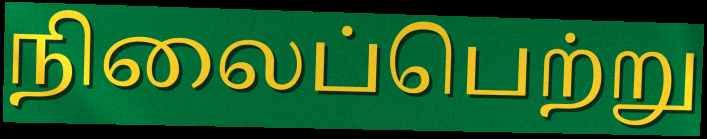
நிலைப்பெற்று